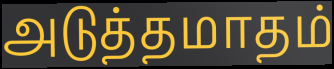
அடுத்தமாதம்